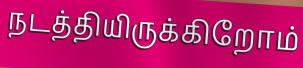
நடத்தியிருக்கிறோம்